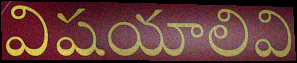
విషయాలివి